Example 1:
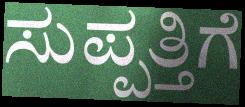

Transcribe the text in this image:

ಸುಪ್ಪತ್ತಿಗೆ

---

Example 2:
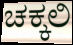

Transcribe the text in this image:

ಚಕ್ಕಲಿ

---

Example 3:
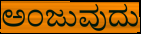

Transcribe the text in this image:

ಅಂಜುವುದು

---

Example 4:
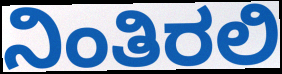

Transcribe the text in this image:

ನಿಂತಿರಲಿ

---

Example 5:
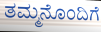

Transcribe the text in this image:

ತಮ್ಮನೊಂದಿಗೆ